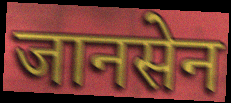
जानसेन